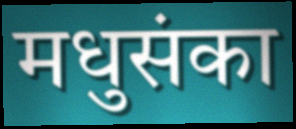
मधुसंका